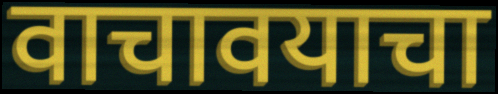
वाचावयाचा